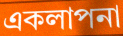
একলাপনা